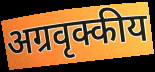
अग्रवृक्कीय